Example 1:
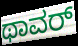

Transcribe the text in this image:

ಥಾವರ್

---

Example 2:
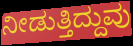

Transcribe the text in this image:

ನೀಡುತ್ತಿದ್ದುವು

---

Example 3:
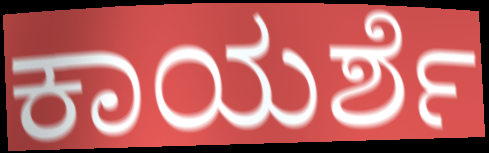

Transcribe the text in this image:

ಕಾಯರ್ಶೆ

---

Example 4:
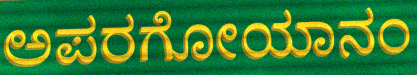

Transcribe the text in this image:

ಅಪರಗೋಯಾನಂ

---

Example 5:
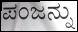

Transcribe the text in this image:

ಪಂಜನ್ನು